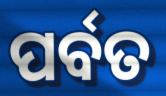
ପର୍ବତ